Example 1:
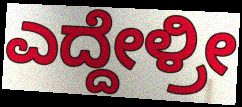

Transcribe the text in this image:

ಎದ್ದೇಳ್ರೀ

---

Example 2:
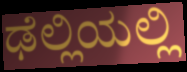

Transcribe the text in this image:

ಢೆಲ್ಲಿಯಲ್ಲಿ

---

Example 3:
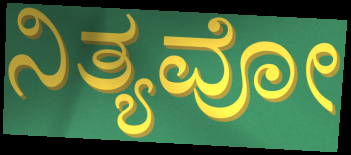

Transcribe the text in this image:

ನಿತ್ಯವೋ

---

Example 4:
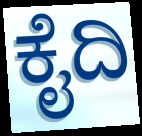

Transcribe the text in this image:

ಕೈದಿ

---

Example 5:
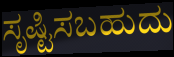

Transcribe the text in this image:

ಸೃಷ್ಟಿಸಬಹುದು